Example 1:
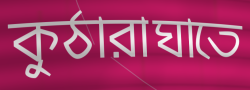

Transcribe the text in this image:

কুঠারাঘাতে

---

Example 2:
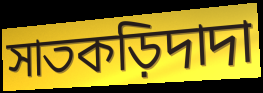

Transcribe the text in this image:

সাতকড়িদাদা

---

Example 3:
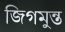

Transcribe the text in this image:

জিগমুন্ত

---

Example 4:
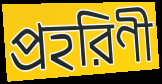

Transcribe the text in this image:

প্রহরিণী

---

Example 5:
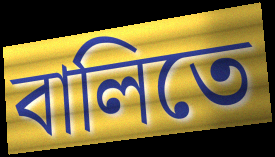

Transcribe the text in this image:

বালিতে